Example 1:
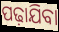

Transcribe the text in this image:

ପଢ଼ାଯିବା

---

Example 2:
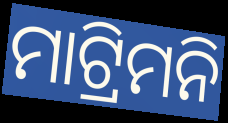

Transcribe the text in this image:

ମାଟ୍ରିମନି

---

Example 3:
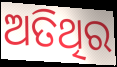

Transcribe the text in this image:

ଅତିଥିର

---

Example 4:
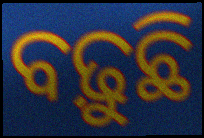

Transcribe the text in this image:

ବଢ଼ୁଛି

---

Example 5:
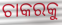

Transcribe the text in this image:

ଚାକରକୁ